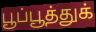
பூப்பூத்துக்